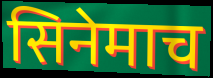
सिनेमाच